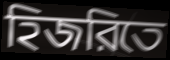
হিজরিতে